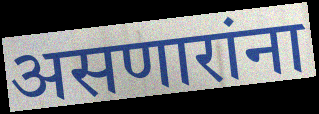
असणारांना